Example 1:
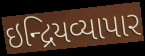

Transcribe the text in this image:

ઇન્દ્રિયવ્યાપાર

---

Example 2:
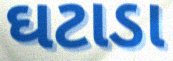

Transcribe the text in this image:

ઘટાડા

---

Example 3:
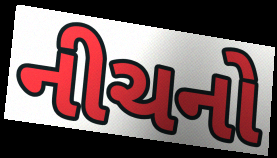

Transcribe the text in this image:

નીચનો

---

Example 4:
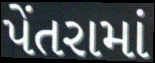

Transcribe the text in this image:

પેંતરામાં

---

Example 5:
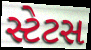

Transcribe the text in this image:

સ્ટેટસ